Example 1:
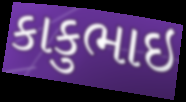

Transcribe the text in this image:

કાકુભાઇ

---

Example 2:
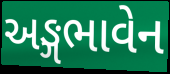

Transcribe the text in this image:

અઙ્ગભાવેન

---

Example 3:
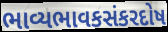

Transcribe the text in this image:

ભાવ્યભાવકસંકરદોષ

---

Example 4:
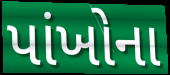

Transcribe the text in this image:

પાંખોના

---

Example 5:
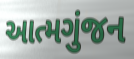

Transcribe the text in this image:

આત્મગુંજન